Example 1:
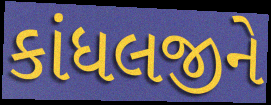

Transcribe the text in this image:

કાંધલજીને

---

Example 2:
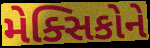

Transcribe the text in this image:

મેક્સિકોને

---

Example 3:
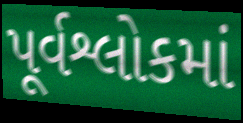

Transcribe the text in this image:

પૂર્વશ્લોકમાં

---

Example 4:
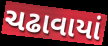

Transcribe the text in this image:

ચઢાવાયાં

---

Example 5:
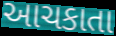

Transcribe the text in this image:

આચકાતા